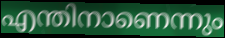
എന്തിനാണെന്നും